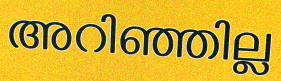
അറിഞ്ഞില്ല